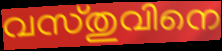
വസ്തുവിനെ